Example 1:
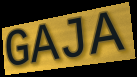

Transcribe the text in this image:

GAJA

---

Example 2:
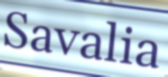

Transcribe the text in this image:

Savalia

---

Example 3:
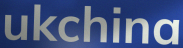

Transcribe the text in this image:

ukchina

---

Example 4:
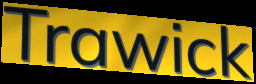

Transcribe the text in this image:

Trawick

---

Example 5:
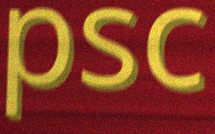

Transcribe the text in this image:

psc